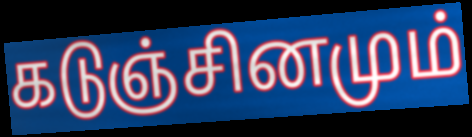
கடுஞ்சினமும்